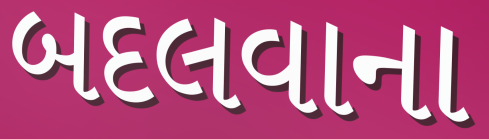
બદલવાના